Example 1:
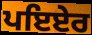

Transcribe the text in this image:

ਪਇਏਰ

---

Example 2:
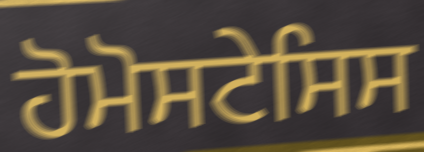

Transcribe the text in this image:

ਹੋਮੋਸਟੇਸਿਸ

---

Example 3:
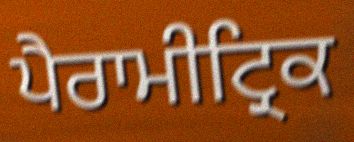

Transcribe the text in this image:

ਪੈਰਾਮੀਟ੍ਰਿਕ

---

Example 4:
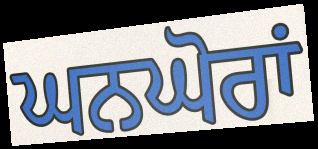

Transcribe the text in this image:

ਘਨਘੋਰਾਂ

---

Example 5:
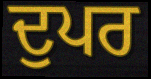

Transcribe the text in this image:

ਦੁਪਰ